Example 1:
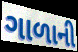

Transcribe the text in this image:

ગાળાની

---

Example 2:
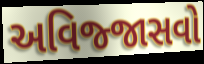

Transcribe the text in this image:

અવિજ્જાસવો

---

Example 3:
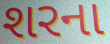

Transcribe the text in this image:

શરના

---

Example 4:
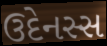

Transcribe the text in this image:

ઉદેનસ્સ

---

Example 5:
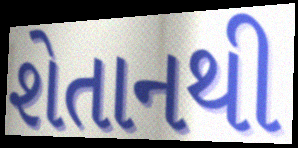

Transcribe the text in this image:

શેતાનથી